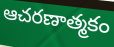
ఆచరణాత్మకం